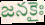
జనకైః